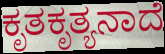
ಕೃತಕೃತ್ಯನಾದೆ